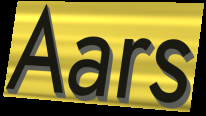
Aars